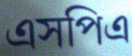
এসপিএ